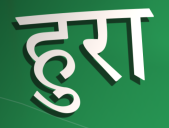
हुरा